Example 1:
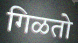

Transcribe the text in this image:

गिळतो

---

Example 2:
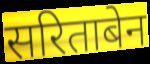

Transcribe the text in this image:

सरिताबेन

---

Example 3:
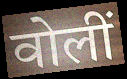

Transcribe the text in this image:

वोलीं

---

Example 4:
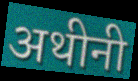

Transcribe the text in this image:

अथीनी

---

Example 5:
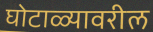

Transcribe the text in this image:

घोटाळ्यावरील